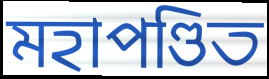
মহাপণ্ডিত